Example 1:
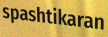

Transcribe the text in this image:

spashtikaran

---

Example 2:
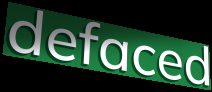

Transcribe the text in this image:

defaced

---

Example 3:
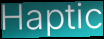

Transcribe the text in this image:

Haptic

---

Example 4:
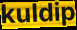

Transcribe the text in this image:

kuldip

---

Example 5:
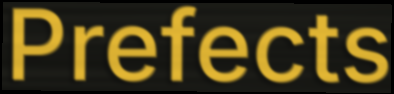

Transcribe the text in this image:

Prefects